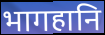
भागहानि